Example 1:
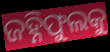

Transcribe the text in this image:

ଜହ୍ନିଫୁଲକୁ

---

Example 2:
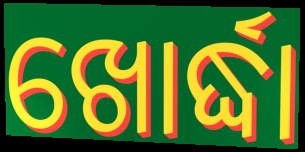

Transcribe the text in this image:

ଖୋର୍ଦ୍ଧା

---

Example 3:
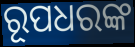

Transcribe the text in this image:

ରୂପଧରଙ୍କ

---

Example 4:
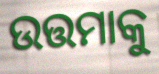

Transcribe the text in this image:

ଉତ୍ତମାକୁ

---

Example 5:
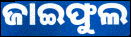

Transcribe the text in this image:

ଜାଇଫୁଲ